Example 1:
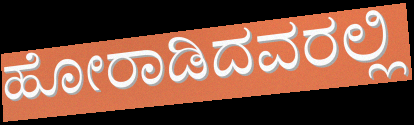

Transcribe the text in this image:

ಹೋರಾಡಿದವರಲ್ಲಿ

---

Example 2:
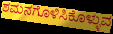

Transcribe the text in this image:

ಶಮನಗೊಳಿಸಿಕೊಳ್ಳುವ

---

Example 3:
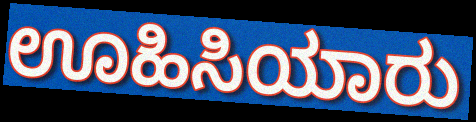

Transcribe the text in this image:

ಊಹಿಸಿಯಾರು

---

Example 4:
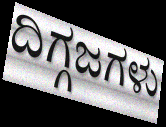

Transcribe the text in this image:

ದಿಗ್ಗಜಗಳು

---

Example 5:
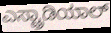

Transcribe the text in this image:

ಎಸ್ಟ್ರಾಡಿಯಾಲ್